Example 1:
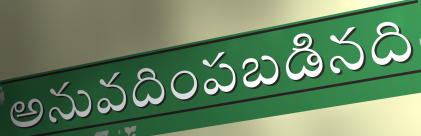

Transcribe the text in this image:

అనువదింపబడినది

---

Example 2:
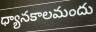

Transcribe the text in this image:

ధ్యానకాలమందు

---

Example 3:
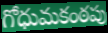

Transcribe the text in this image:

గోధుమకంఠపు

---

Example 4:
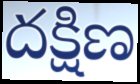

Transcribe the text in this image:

దక్షిణ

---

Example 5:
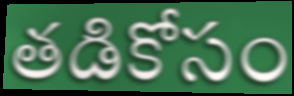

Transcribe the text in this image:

తడికోసం